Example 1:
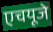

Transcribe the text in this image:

एचयूजे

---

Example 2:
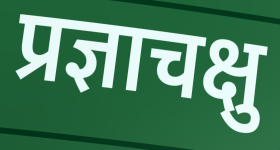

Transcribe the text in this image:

प्रज्ञाचक्षु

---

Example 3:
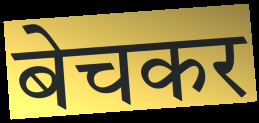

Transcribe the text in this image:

बेचकर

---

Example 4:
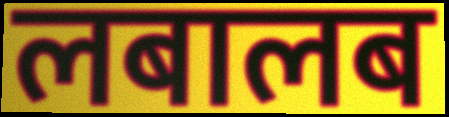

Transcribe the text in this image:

लबालब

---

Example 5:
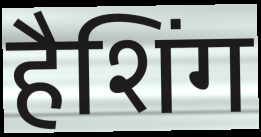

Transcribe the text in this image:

हैशिंग